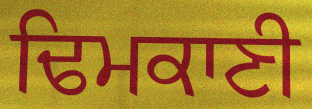
ਢਿਮਕਾਣੀ